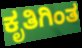
ಕೃತಿಗಿಂತ